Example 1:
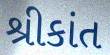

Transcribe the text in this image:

શ્રીકાંત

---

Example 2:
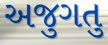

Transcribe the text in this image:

અજુગતુ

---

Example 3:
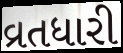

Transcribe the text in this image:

વ્રતધારી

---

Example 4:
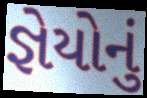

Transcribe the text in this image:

જ્ઞેયોનું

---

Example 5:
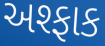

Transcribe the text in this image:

અશ્ફાક